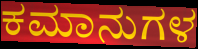
ಕಮಾನುಗಳ